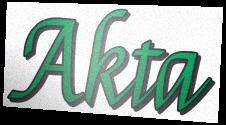
Akta